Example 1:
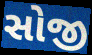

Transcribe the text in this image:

સોજી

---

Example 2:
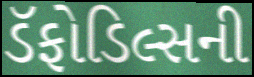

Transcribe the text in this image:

ડૅફોડિલ્સની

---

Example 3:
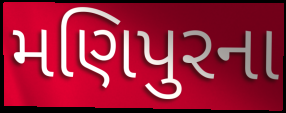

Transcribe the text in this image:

મણિપુરના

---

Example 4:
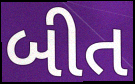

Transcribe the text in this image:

બીત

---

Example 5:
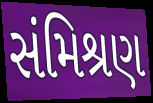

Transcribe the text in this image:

સંમિશ્રણ